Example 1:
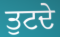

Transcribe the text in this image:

ਤੁਟਦੇ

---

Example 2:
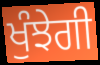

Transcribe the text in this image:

ਖੁੰਝੇਗੀ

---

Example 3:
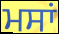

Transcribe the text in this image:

ਮਸਾਂ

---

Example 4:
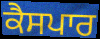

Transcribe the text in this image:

ਕੈਸਪਾਰ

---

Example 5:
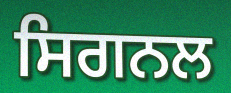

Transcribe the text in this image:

ਸਿਗਨਲ